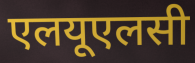
एलयूएलसी